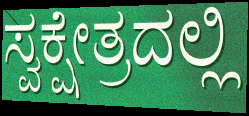
ಸ್ವಕ್ಷೇತ್ರದಲ್ಲಿ